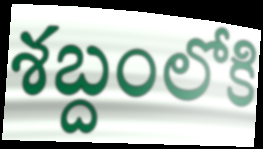
శబ్దంలోకి